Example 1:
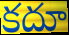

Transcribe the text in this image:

కదూ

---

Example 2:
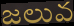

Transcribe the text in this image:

జలువ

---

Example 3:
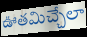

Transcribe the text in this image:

ఊతమిచ్చేలా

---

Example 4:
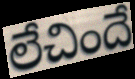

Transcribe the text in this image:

లేచిందే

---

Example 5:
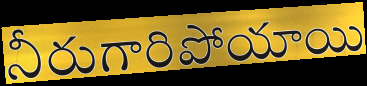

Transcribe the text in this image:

నీరుగారిపోయాయి